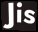
Jis